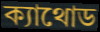
ক্যাথোড